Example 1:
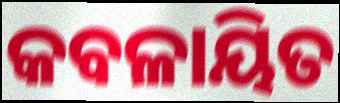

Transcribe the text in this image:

କବଳାୟିତ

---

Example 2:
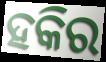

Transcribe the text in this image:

ହକିର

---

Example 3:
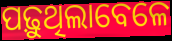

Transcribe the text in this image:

ପଢ଼ୁଥିଲାବେଳେ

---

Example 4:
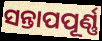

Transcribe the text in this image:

ସନ୍ତାପପୂର୍ଣ୍ଣ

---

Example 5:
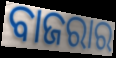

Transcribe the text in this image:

ବାଜରାର